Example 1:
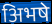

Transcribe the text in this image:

अिभषे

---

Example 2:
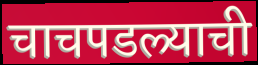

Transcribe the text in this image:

चाचपडल्याची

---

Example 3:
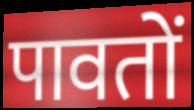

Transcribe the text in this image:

पावतों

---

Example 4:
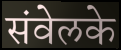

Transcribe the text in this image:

संवेलके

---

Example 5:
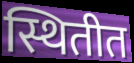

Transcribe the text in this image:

स्थितीत